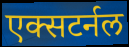
एक्सटर्नल